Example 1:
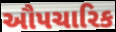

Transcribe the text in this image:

ઔપચારિક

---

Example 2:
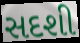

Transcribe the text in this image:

સદશી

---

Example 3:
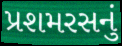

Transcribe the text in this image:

પ્રશમરસનું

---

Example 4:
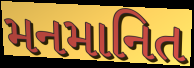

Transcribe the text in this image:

મનમાનિત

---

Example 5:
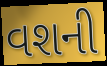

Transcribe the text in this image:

વશની